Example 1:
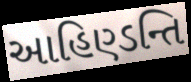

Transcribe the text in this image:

આહિણ્ડન્તિ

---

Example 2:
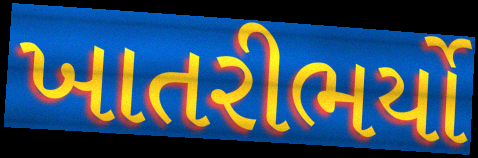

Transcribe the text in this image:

ખાતરીભર્યો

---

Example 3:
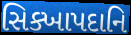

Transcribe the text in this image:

સિક્ખાપદાનિ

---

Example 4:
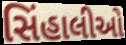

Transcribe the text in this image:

સિંહાલીઓ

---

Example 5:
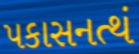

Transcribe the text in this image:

પકાસનત્થં